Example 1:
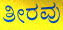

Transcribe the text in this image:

ತೀರವು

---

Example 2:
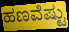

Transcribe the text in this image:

ಹಣವೆಷ್ಟು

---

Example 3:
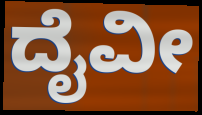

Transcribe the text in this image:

ದೈವೀ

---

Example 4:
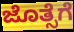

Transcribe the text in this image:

ಜೊತ್ಸೆಗೆ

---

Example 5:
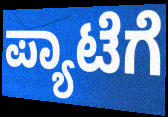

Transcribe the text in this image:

ಪ್ಯಾಟೆಗೆ